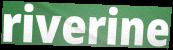
riverine